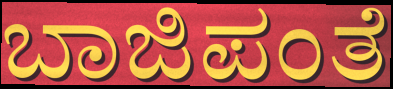
ಬಾಜಿಪಂತೆ